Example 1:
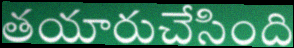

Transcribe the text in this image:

తయారుచేసింది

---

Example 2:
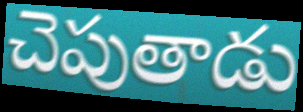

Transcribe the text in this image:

చెపుతాడు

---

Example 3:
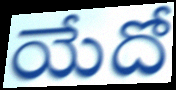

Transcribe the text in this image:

యేదో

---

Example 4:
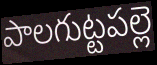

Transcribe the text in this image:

పాలగుట్టపల్లె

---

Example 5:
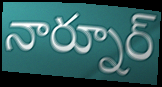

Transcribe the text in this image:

నార్నూర్